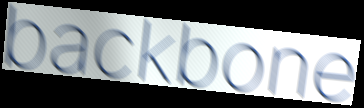
backbone